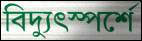
বিদ্যুৎস্পর্শে